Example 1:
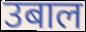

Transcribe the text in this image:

उबाल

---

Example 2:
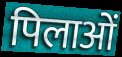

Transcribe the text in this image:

पिलाओं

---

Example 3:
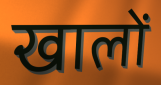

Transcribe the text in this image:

खालों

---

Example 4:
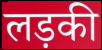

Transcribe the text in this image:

लड़की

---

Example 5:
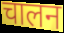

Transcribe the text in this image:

चालन